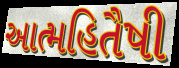
આત્મહિતૈષી